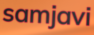
samjavi